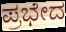
ಪ್ರಭೇದ